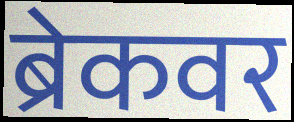
ब्रेकवर